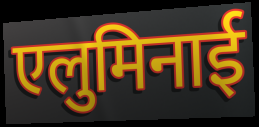
एलुमिनाई